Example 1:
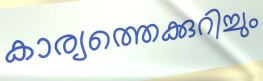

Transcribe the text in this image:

കാര്യത്തെക്കുറിച്ചും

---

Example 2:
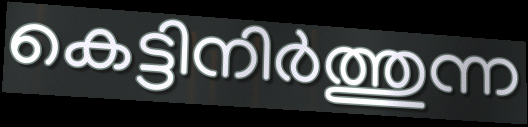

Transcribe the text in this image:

കെട്ടിനിർത്തുന്ന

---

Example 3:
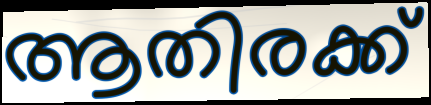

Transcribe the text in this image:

ആതിരക്ക്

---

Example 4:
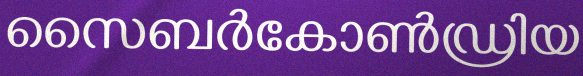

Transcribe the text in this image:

സൈബർകോൺഡ്രിയ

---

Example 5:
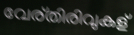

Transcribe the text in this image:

വേര്തിരിവുകള്